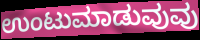
ಉಂಟುಮಾಡುವುವು